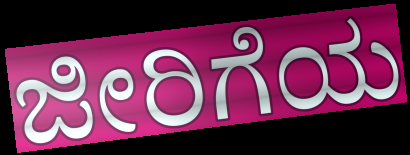
ಜೀರಿಗೆಯ